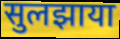
सुलझाया